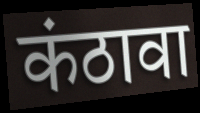
कंठावा